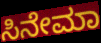
ಸಿನೇಮಾ